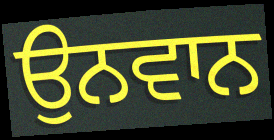
ਉਨਵਾਨ